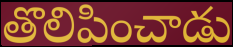
తొలిపించాడు